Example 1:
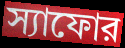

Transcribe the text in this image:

স্যাফোর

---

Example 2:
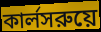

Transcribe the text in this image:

কার্লসরুয়ে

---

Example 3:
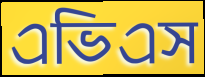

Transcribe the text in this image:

এভিএস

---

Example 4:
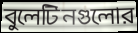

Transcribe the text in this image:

বুলেটিনগুলোর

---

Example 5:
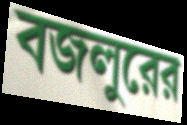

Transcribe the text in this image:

বজলুরের